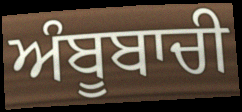
ਅੰਬੂਬਾਚੀ